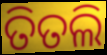
ତିତଲି